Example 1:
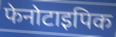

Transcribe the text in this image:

फेनोटाइपिक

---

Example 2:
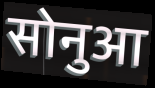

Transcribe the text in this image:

सोनुआ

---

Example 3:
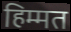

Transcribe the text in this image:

हिम्‍मत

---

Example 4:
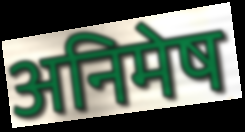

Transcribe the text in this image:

अनिमेष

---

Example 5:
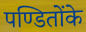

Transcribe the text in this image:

पण्डितोंके